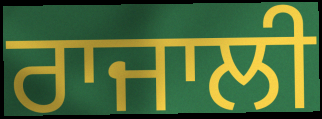
ਰਾਜਾਲੀ